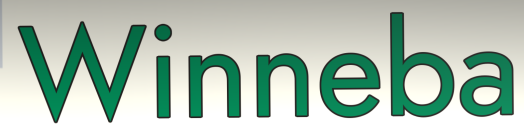
Winneba